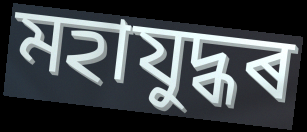
মহাযুদ্ধৰ